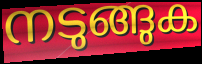
നടുങ്ങുക